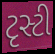
ટૃસ્ટી